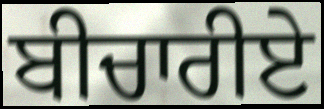
ਬੀਚਾਰੀਏ